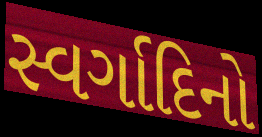
સ્વર્ગાદિનો